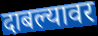
दाबल्यावर